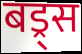
बड्र्स